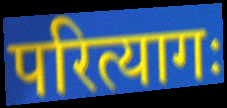
परित्यागः